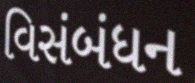
વિસંબંધન